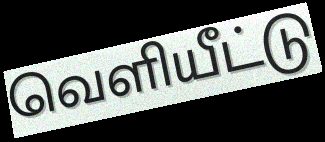
வெளியீட்டு